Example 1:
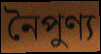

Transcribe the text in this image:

নৈপুণ্য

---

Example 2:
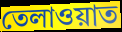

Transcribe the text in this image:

তেলাওয়াত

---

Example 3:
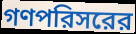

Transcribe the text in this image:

গণপরিসরের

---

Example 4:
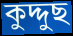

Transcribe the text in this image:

কুদ্দুছ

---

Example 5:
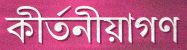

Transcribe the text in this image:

কীর্তনীয়াগণ